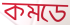
কমডে